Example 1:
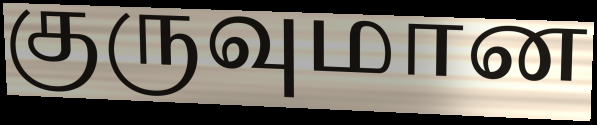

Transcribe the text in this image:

குருவுமான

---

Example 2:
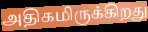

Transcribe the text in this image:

அதிகமிருக்கிறது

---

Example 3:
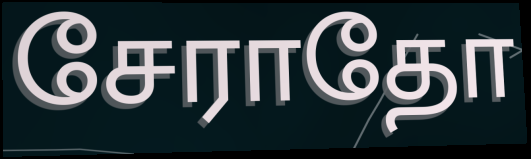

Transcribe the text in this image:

சேராதோ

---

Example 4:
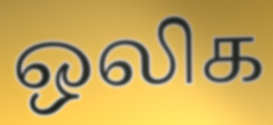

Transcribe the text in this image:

ஒலிக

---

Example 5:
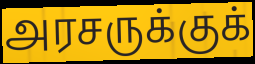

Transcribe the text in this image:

அரசருக்குக்